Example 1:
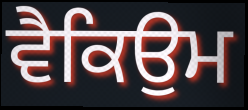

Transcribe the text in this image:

ਵੈਕਿਉਮ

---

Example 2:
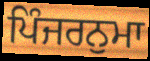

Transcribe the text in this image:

ਪਿੰਜਰਨੁਮਾ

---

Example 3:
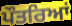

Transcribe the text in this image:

ਪੌਤਰਿਆਂ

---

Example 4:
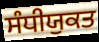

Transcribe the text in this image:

ਸੰਧੀਯੁਕਤ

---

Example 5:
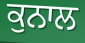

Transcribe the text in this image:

ਕੁਨਾਲ